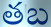
తబ